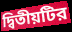
দ্বিতীয়টির